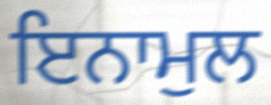
ਇਨਾਮੁਲ